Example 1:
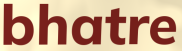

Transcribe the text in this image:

bhatre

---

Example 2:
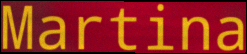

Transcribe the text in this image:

Martina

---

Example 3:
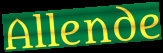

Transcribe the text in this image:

Allende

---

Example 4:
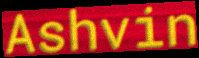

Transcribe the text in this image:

Ashvin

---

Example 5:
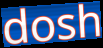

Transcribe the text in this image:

dosh